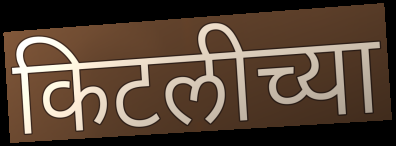
किटलीच्या